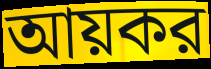
আয়কর